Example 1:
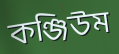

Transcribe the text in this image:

কঞ্জিউম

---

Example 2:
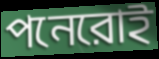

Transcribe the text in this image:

পনেরোই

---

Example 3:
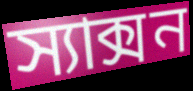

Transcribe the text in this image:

স্যাক্সন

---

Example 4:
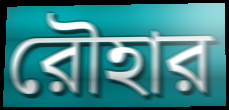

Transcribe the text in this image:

রৌহার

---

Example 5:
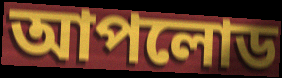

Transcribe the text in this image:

আপলোড